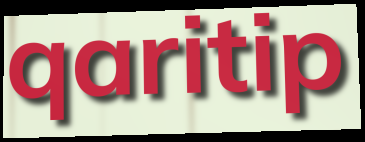
qaritip